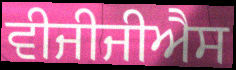
ਵੀਜੀਜੀਐਸ